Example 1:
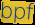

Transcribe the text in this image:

bpf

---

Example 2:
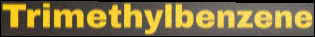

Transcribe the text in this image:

Trimethylbenzene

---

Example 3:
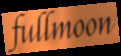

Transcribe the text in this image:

fullmoon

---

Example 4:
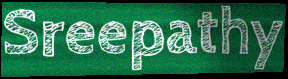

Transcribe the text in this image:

Sreepathy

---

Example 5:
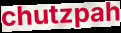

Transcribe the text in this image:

chutzpah